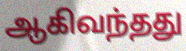
ஆகிவந்தது